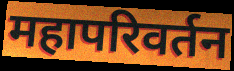
महापरिवर्तन